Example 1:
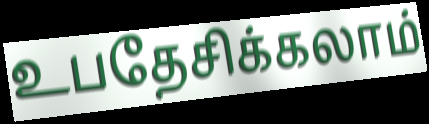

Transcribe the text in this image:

உபதேசிக்கலாம்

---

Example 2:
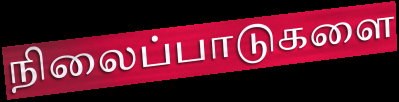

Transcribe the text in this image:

நிலைப்பாடுகளை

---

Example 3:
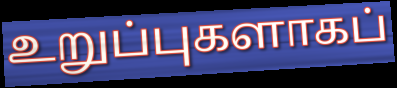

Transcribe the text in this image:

உறுப்புகளாகப்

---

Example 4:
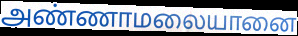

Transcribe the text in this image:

அண்ணாமலையானை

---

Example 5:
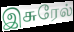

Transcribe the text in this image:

இசுரேல்